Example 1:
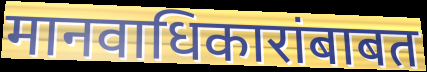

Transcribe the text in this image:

मानवाधिकारांबाबत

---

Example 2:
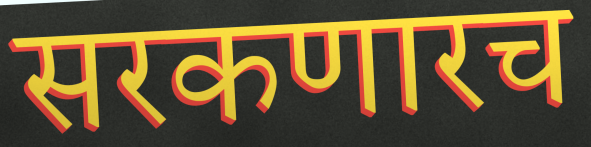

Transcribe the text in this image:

सरकणारच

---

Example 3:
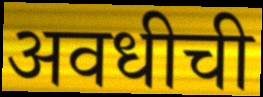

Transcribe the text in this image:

अवधीची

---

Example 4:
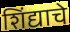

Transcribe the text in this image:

शिंद्याचे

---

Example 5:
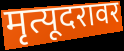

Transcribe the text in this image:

मृत्यूदरावर